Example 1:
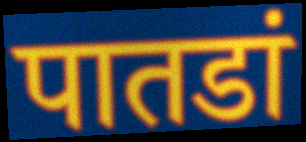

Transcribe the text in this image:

पातडां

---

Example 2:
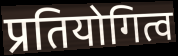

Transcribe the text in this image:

प्रतियोगित्व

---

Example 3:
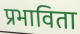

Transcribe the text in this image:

प्रभाविता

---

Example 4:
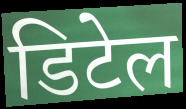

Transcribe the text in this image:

डिटेल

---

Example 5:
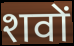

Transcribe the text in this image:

शवों